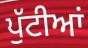
ਪੁੱਟੀਆਂ